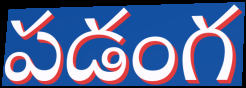
పడంగ